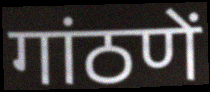
गांठणें